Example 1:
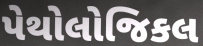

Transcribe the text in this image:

પેથોલોજિકલ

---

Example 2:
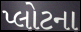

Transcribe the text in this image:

પ્લોટના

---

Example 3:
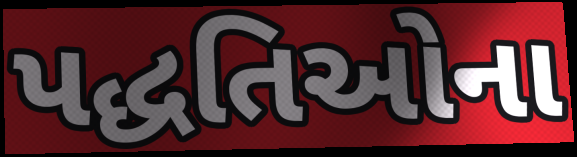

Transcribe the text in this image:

પદ્ધતિઓના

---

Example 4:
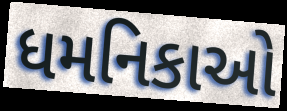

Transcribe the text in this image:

ધમનિકાઓ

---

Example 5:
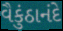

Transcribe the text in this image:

વૈકુંઠાનંદે